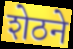
शेठने